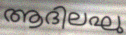
ആദിലഘു